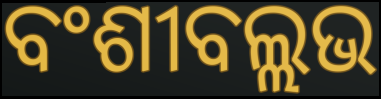
ବଂଶୀବଲ୍ଲଭ